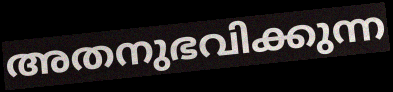
അതനുഭവിക്കുന്ന